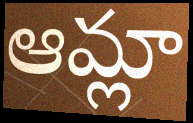
ఆమ్లా